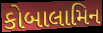
કોબાલામિન